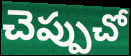
చెప్పుచో